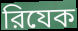
রিযেক